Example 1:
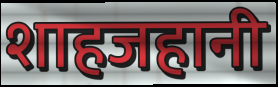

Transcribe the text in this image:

शाहजहानी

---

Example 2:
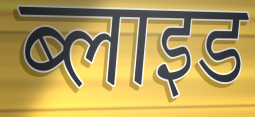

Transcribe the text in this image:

ब्लाइड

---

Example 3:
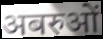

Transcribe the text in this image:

अबरुओं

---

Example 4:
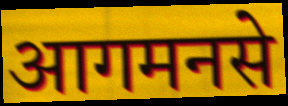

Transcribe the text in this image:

आगमनसे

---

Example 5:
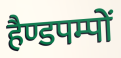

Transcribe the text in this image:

हैण्डपम्पों